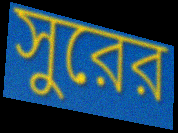
সুরের